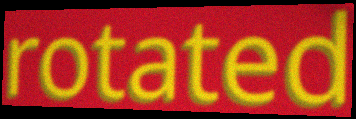
rotated